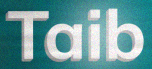
Taib